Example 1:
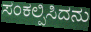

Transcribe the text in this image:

ಸಂಕಲ್ಪಿಸಿದನು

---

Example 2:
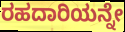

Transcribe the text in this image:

ರಹದಾರಿಯನ್ನೇ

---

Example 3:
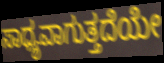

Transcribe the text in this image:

ಸಾಧ್ಯವಾಗುತ್ತದೆಯೇ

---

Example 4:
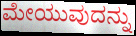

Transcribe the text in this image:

ಮೇಯುವುದನ್ನು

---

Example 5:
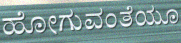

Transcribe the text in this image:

ಹೋಗುವಂತೆಯೂ